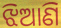
ଝିଆଣି